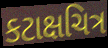
કટાક્ષચિત્ર